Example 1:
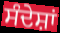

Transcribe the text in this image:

ਸੰਦੇਸ਼ਾਂ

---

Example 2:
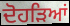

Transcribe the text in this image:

ਦੋਹੜਿਆਂ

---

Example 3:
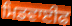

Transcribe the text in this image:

ਮਿਡਵਾਈਫ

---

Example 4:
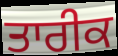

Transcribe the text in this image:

ਤਾਰੀਕ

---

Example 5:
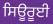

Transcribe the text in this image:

ਸਿਊਰੂਈ